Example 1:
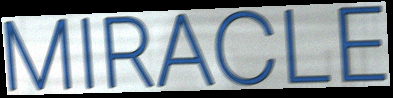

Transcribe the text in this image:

MIRACLE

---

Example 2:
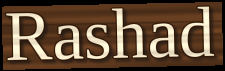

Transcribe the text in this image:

Rashad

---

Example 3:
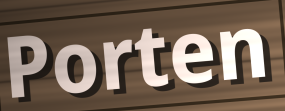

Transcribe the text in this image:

Porten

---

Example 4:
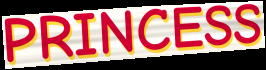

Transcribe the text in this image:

PRINCESS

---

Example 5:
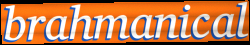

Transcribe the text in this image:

brahmanical